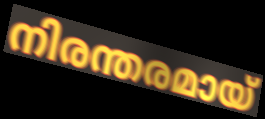
നിരന്തരമായ്